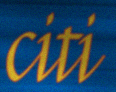
citi